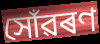
সোঁৱৰণ